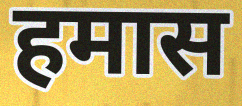
हमास